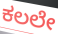
ಕಲಲೇ